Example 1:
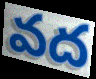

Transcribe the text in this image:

వద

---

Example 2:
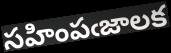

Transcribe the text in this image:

సహింపఁజాలక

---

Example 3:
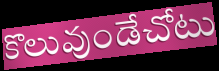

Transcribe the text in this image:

కొలువుండేచోటు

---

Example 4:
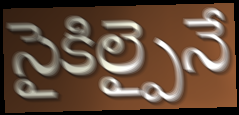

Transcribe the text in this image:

సైకిల్పైనే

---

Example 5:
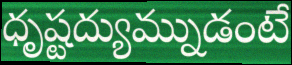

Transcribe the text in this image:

ధృష్టద్యుమ్నుడంటే